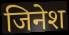
जिनेश